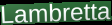
Lambretta